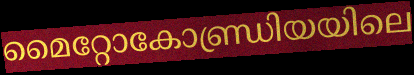
മൈറ്റോകോണ്ഡ്രിയയിലെ